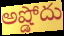
అష్డోదు